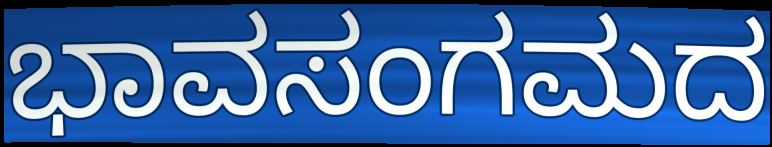
ಭಾವಸಂಗಮದ